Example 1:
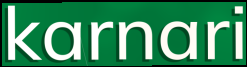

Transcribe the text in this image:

karnari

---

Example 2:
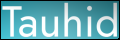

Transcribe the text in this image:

Tauhid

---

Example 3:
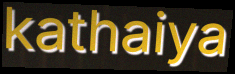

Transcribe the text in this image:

kathaiya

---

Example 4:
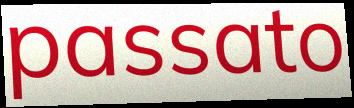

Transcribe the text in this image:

passato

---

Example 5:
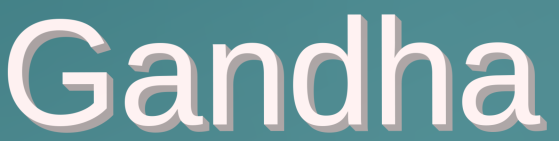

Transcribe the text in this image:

Gandha